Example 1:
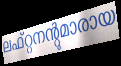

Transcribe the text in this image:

ലഫ്റ്റനന്റുമാരായ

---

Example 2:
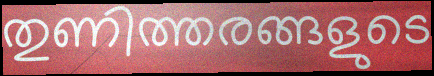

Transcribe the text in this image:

തുണിത്തരങ്ങളുടെ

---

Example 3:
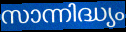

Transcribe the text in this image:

സാന്നിദ്ധ്യം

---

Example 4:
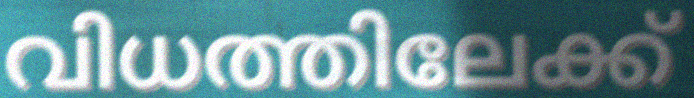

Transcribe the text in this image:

വിധത്തിലേക്ക്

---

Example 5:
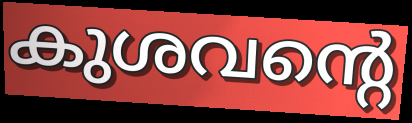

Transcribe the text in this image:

കുശവന്റെ